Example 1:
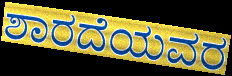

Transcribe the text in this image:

ಶಾರದೆಯವರ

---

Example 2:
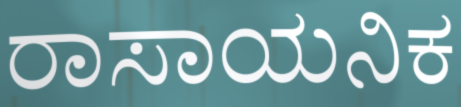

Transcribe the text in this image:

ರಾಸಾಯನಿಕ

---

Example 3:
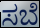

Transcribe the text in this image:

ಸಬೆ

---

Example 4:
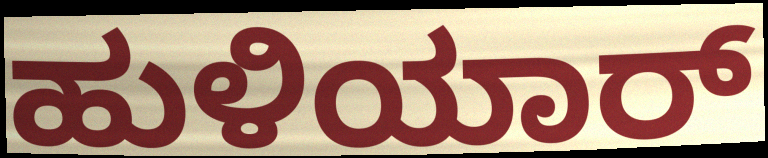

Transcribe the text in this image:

ಹುಳಿಯಾರ್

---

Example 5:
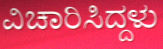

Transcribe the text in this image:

ವಿಚಾರಿಸಿದ್ದಳು